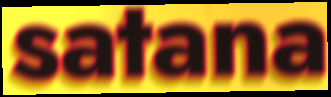
satana